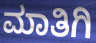
ಮಾತಿಗಿ